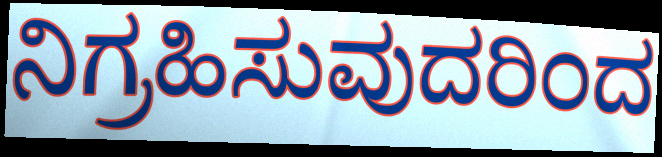
ನಿಗ್ರಹಿಸುವುದರಿಂದ